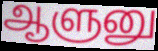
ஆளுனு